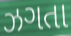
ઝગતા